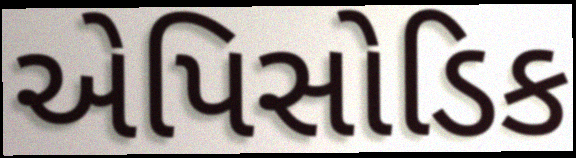
એપિસોડિક